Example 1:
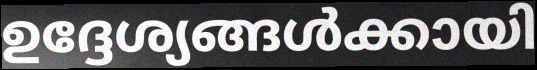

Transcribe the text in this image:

ഉദ്ദേശ്യങ്ങൾക്കായി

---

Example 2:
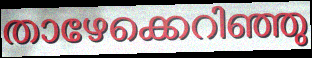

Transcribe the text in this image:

താഴേക്കെറിഞ്ഞു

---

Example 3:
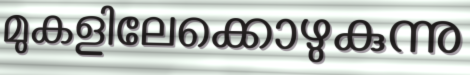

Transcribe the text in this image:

മുകളിലേക്കൊഴുകുന്നു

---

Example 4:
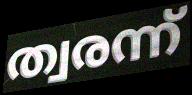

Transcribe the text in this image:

ത്വരന്ന്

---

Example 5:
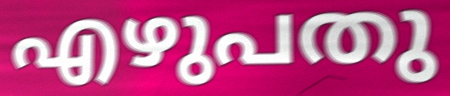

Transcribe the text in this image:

എഴുപതു